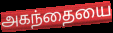
அகந்தையை